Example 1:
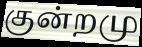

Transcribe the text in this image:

குன்றமு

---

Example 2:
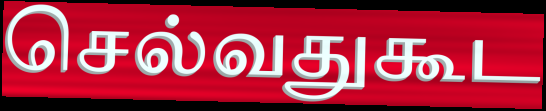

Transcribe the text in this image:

செல்வதுகூட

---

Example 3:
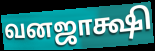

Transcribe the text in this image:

வனஜாக்ஷி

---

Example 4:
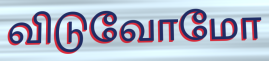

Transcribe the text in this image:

விடுவோமோ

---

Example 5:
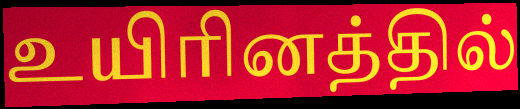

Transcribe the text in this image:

உயிரினத்தில்